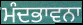
ਮੰਦਭਾਵਨਾ